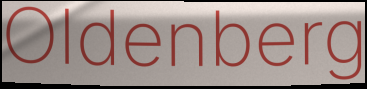
Oldenberg